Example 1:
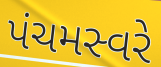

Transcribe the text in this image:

પંચમસ્વરે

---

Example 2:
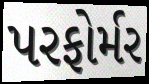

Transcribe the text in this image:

પરફોર્મર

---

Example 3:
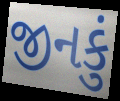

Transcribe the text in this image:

જીનકું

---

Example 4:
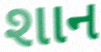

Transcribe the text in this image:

શાન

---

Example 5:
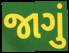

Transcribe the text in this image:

જાગું